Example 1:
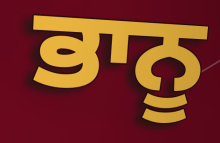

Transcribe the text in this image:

ਭਾਨੂ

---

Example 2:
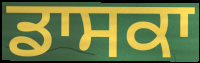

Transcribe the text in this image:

ਡਾਸਕਾ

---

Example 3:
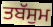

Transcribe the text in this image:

ਤਬੱਸੁਮ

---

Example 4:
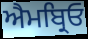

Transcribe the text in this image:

ਐਮਬ੍ਰਿਓ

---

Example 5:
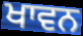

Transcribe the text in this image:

ਖਾਵਨ